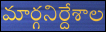
మార్గనిర్దేశాల